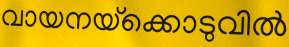
വായനയ്‌ക്കൊടുവിൽ